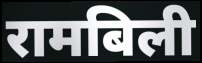
रामबिली